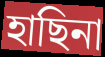
হাছিনা